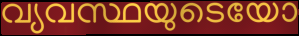
വ്യവസ്ഥയുടെയോ